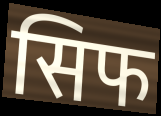
सिफ